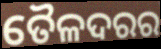
ତୈଳଦରର